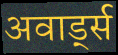
अवार्ड्स